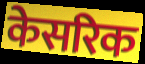
केसरिक